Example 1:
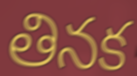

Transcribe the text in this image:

తినక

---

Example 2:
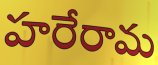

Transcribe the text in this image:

హరేరామ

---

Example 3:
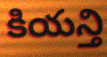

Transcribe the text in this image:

కియన్తి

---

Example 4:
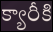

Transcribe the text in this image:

క్యారీకి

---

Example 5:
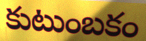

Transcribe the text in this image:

కుటుంబకం